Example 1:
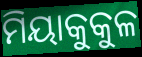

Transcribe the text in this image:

ମିୟାକୁକୁଳ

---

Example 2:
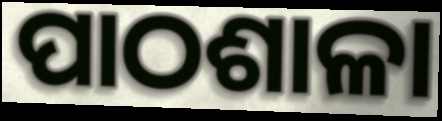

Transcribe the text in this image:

ପାଠଶାଳା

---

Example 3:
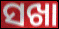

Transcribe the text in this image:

ସଖା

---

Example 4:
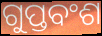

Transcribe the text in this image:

ଗୁପ୍ତବଂଶ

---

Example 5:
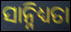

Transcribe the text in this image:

ସାନ୍ନିଧ୍ୟତା